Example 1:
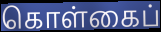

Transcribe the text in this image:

கொள்கைப்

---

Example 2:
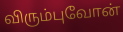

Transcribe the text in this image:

விரும்புவோன்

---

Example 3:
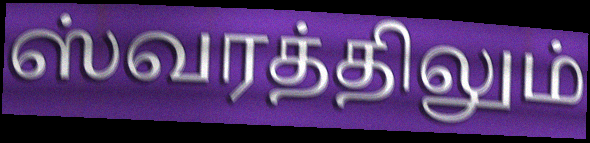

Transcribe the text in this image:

ஸ்வரத்திலும்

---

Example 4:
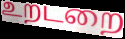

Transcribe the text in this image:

உறடறை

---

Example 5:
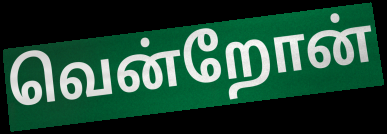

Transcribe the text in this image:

வென்றோன்